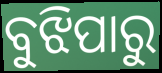
ବୁଝିପାରୁ